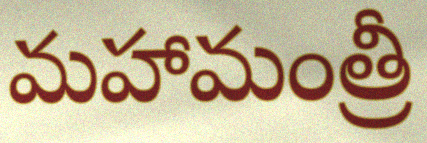
మహామంత్రీ